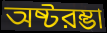
অষ্টরম্ভা